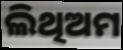
ଲିଥିଅମ